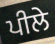
ਪੀਲੇ